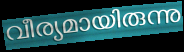
വീര്യമായിരുന്നു